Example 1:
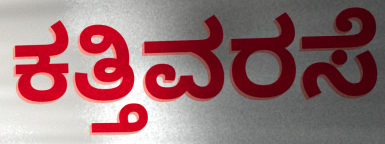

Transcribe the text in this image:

ಕತ್ತಿವರಸೆ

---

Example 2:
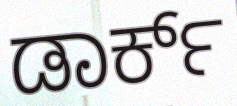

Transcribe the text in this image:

ಡಾರ್ಕ್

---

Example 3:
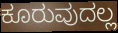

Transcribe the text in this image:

ಕೂರುವುದಲ್ಲ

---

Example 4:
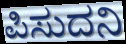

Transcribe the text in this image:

ಪಿಸುದನಿ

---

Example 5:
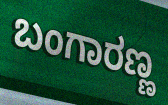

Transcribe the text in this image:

ಬಂಗಾರಣ್ಣ